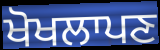
ਖੋਖਲਾਪਣ